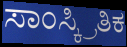
ಸಾಂಸ್ಕ್ರಿತಿಕ